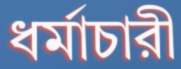
ধর্মাচারী